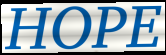
HOPE